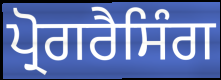
ਪ੍ਰੋਗਰੈਸਿੰਗ